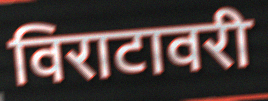
विराटावरी